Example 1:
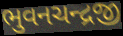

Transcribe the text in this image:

ભુવનચન્દ્રજી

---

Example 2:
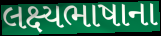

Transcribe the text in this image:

લક્ષ્યભાષાના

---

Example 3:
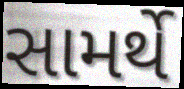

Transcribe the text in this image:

સામર્થે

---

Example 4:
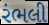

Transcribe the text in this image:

રંભલી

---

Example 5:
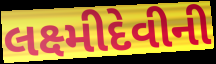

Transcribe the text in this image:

લક્ષ્મીદેવીની